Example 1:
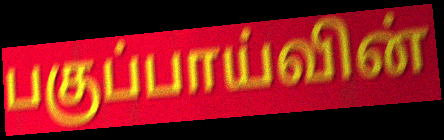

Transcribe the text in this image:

பகுப்பாய்வின்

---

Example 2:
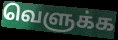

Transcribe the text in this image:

வெளுக்க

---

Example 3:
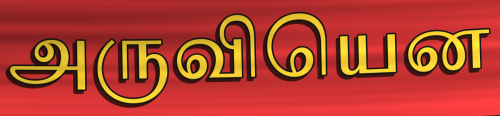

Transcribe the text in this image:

அருவியென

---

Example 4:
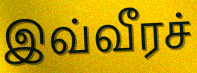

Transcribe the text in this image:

இவ்வீரச்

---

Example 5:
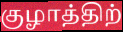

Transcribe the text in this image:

குழாத்திற்